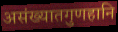
असंख्यातगुणहानि